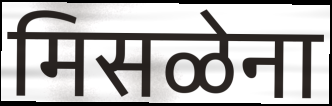
मिसळेना